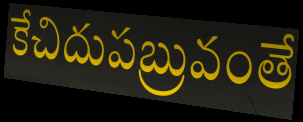
కేచిదుపబ్రువంతే